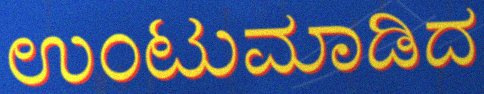
ಉಂಟುಮಾಡಿದ